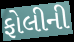
ફોલીની